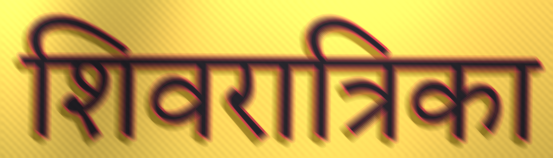
शिवरात्रिका